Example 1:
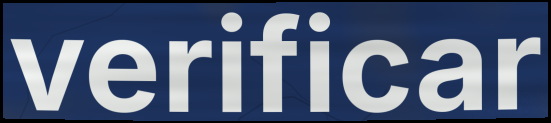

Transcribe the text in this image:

verificar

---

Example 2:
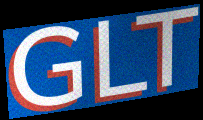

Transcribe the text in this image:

GLT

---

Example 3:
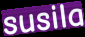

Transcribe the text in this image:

susila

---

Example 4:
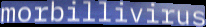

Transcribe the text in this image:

morbillivirus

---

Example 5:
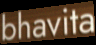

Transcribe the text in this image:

bhavita